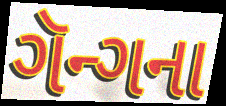
ગૅન્ગના